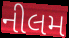
નીલમ